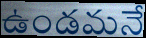
ఉండమనే